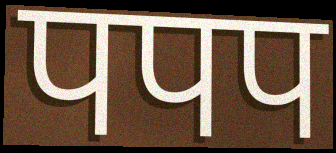
पपप